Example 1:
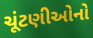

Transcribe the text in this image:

ચૂંટણીઓનો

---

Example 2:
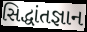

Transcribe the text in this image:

સિદ્ધાંતજ્ઞાન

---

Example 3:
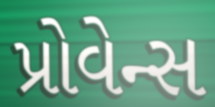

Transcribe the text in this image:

પ્રોવેન્સ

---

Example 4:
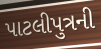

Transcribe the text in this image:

પાટલીપુત્રની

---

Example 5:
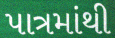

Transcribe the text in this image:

પાત્રમાંથી